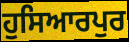
ਹੁਸਿਆਰਪੁਰ